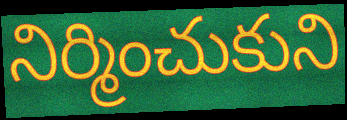
నిర్మించుకుని